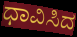
ಧಾವಿಸಿದ